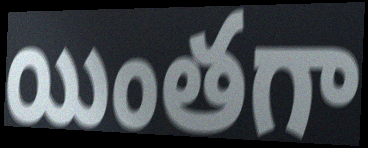
యింతగా